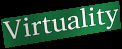
Virtuality